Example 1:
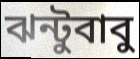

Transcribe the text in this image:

ঝন্টুবাবু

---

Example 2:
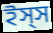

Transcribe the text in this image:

ইস্‌স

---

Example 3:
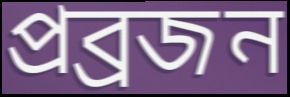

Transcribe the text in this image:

প্রব্রজন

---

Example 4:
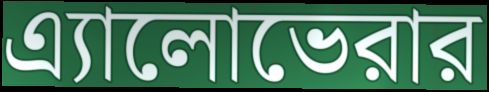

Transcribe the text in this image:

এ্যালোভেরার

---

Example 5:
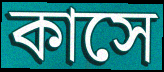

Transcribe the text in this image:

কাসে